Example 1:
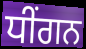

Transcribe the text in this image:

ਧੀਂਗਨ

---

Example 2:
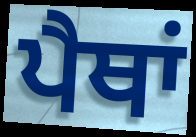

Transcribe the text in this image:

ਪੈਥਾਂ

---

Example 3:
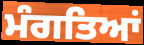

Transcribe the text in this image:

ਮੰਗਤਿਆਂ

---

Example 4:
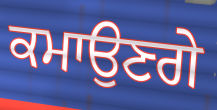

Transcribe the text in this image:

ਕਮਾਉਣਗੇ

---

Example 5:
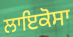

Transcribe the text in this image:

ਲਾਇਕੋਸਾ